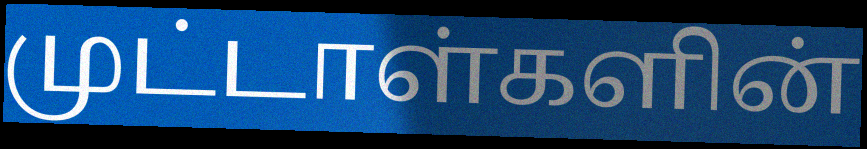
முட்டாள்களின்